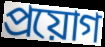
প্ৰয়োগ